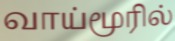
வாய்மூரில்